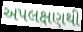
અપલક્ષણથી